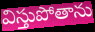
విస్తుపోతాను